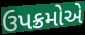
ઉપક્રમોએ